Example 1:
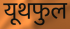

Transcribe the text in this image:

यूथफुल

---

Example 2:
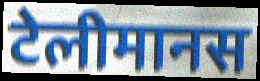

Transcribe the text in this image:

टेलीमानस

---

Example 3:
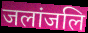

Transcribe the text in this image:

जलांजलि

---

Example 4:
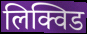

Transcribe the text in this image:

लिक्विड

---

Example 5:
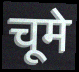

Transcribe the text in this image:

चूमे